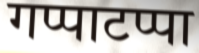
गप्पाटप्पा